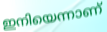
ഇനിയെന്നാണ്